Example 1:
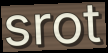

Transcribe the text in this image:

srot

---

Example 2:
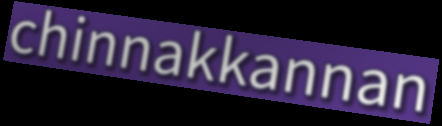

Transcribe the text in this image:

chinnakkannan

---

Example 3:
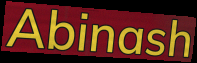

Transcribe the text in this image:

Abinash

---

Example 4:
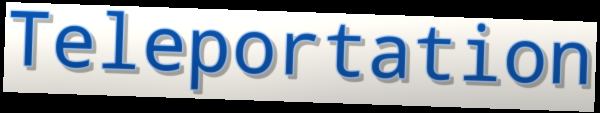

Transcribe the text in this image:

Teleportation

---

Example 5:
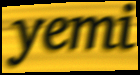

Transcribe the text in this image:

yemi